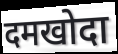
दमखोदा